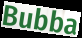
Bubba